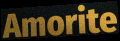
Amorite